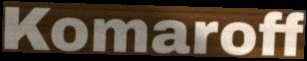
Komaroff